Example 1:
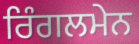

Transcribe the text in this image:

ਰਿੰਗਲਮੇਨ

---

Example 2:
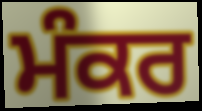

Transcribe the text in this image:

ਮੰਕਰ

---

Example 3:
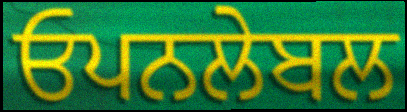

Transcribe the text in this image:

ਓਪਨਲੇਬਲ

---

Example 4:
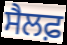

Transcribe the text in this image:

ਸੈਲਫ਼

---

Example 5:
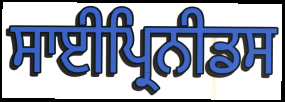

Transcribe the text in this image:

ਸਾਈਪ੍ਰਿਨੀਡਸ